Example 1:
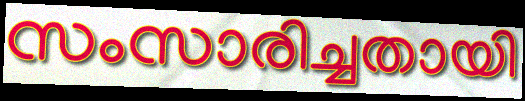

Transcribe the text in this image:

സംസാരിച്ചതായി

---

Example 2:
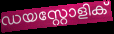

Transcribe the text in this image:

ഡയസ്റ്റോളിക്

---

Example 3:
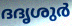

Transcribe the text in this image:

ദദൃശുർ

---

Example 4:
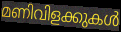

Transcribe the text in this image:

മണിവിളക്കുകൾ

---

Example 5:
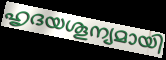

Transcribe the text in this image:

ഹൃദയശൂന്യമായി